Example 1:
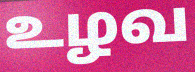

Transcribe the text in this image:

உழவ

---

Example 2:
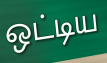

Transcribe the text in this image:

ஒட்டிய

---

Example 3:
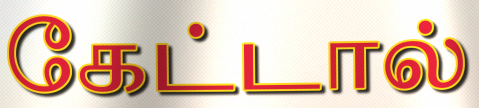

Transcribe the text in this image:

கேட்டால்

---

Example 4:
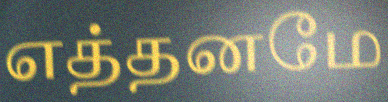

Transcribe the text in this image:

எத்தனமே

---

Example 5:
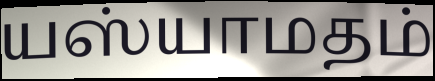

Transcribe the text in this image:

யஸ்யாமதம்